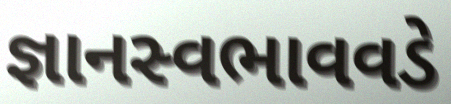
જ્ઞાનસ્વભાવવડે